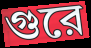
গুরে